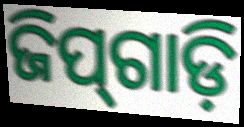
ଜିପ୍‌ଗାଡ଼ି